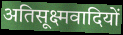
अतिसूक्ष्मवादियों